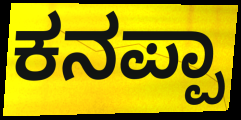
ಕನಪ್ಪಾ